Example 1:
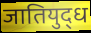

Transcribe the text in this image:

जातियुद्ध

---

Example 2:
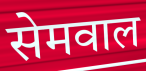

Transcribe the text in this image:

सेमवाल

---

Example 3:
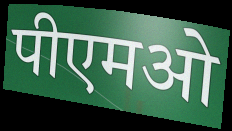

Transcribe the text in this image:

पीएमओ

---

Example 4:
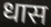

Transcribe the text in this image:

धास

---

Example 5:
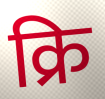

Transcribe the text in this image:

क्रि